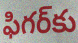
ఫిగర్‌కు